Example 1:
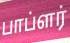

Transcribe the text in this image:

பாப்ளர்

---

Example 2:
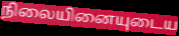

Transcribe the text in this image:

நிலையினையுடைய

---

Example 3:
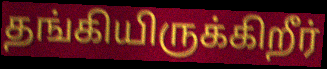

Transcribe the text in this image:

தங்கியிருக்கிறீர்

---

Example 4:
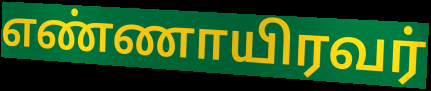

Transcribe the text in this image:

எண்ணாயிரவர்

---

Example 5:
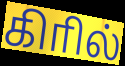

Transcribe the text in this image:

கிரில்